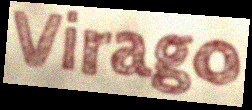
Virago